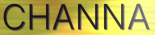
CHANNA